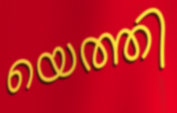
യെത്തി